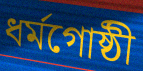
ধৰ্মগোষ্ঠী